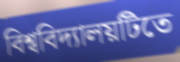
বিশ্ববিদ্যালয়টিতে